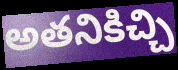
అతనికిచ్చి